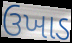
ઉખાડ